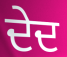
ਦੇਦ